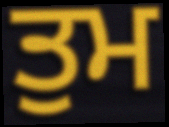
ਤੁਮ